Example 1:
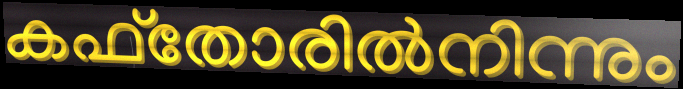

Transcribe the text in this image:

കഫ്തോരിൽനിന്നും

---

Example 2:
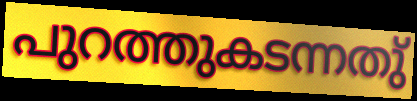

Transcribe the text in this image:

പുറത്തുകടന്നതു്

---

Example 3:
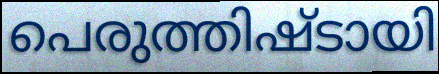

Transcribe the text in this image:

പെരുത്തിഷ്ടായി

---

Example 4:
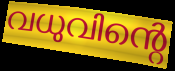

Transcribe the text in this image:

വധുവിന്റെ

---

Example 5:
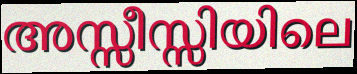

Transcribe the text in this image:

അസ്സീസ്സിയിലെ